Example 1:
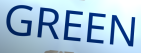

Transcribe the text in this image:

GREEN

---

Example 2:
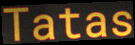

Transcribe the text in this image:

Tatas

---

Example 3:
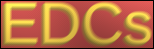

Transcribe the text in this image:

EDCs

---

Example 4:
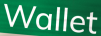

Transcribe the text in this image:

Wallet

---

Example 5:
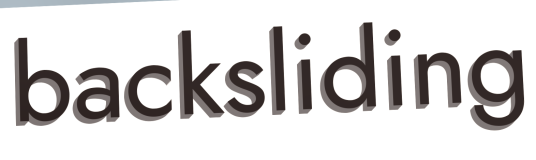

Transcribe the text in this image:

backsliding